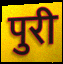
पुरी